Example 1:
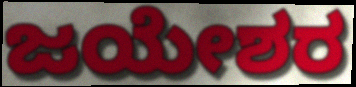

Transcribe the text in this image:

ಜಯೇಶರ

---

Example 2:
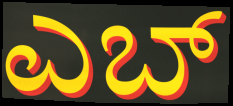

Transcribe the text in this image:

ಎಬ್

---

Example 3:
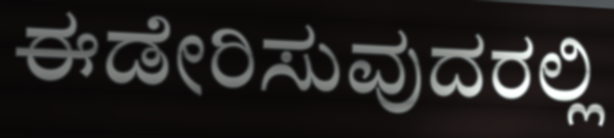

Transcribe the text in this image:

ಈಡೇರಿಸುವುದರಲ್ಲಿ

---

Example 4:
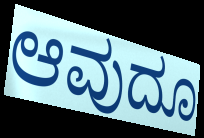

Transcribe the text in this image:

ಆವುದೂ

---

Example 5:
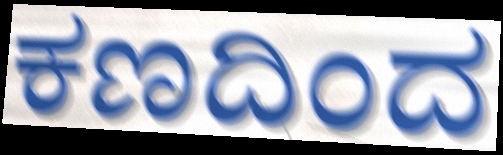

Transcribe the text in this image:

ಕಣದಿಂದ